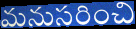
మనుసరించి